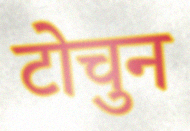
टोचुन